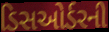
ડિસઓર્ડરની